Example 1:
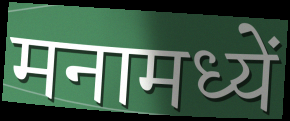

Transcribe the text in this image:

मनामध्यें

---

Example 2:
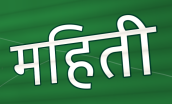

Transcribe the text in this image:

महिती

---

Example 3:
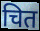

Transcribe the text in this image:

चित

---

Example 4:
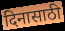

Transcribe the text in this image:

दिनासाठी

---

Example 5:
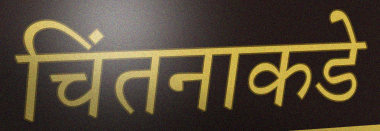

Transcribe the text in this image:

चिंतनाकडे